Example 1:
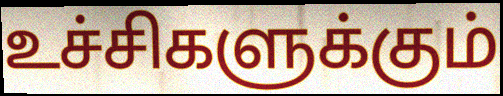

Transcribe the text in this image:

உச்சிகளுக்கும்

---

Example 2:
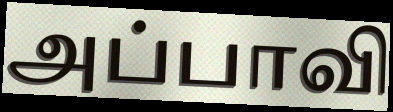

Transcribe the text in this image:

அப்பாவி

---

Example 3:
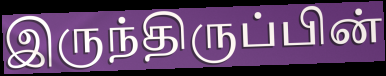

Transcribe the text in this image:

இருந்திருப்பின்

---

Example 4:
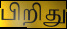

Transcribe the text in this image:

பிறிது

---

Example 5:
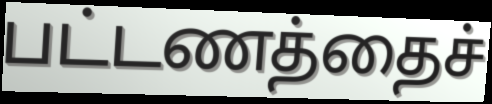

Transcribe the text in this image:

பட்டணத்தைச்